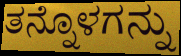
ತನ್ನೊಳಗನ್ನು